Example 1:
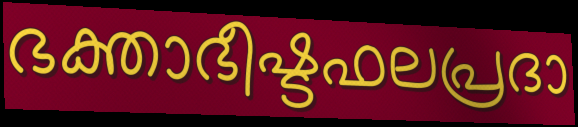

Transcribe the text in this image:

ഭക്താഭീഷ്ടഫലപ്രദാ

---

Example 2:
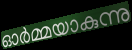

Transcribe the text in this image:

ഓർമ്മയാകുന്നു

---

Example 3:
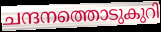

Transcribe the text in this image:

ചന്ദനത്തൊടുകുറി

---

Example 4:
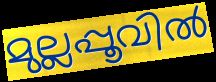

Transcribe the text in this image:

മുല്ലപ്പൂവിൽ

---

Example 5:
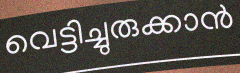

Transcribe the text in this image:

വെട്ടിച്ചുരുക്കാൻ